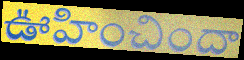
ఊహించిందా